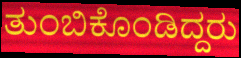
ತುಂಬಿಕೊಂಡಿದ್ದರು